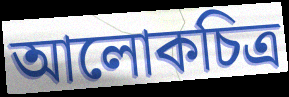
আলোকচিত্ৰ